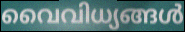
വൈവിധ്യങ്ങൾ